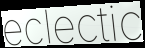
eclectic